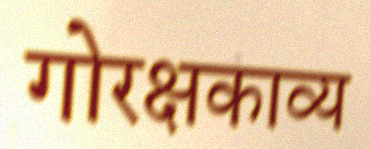
गोरक्षकाव्य